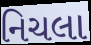
નિચલા